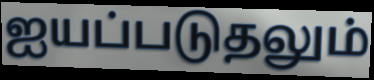
ஐயப்படுதலும்